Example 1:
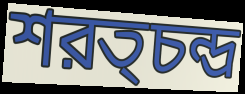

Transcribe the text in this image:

শরত্চন্দ্র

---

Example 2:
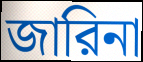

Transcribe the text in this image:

জারিনা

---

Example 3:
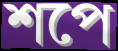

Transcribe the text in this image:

শপে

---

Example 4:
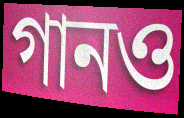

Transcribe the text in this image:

গানও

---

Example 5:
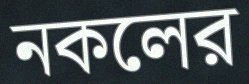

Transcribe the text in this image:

নকলের